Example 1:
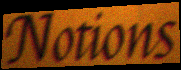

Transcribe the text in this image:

Notions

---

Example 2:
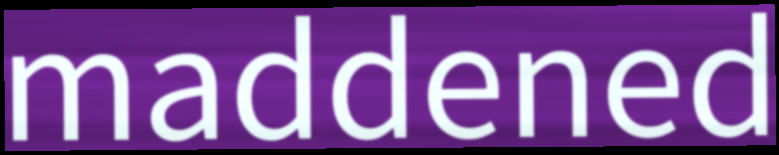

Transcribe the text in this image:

maddened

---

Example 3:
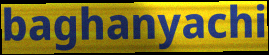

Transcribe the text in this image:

baghanyachi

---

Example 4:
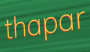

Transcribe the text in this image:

thapar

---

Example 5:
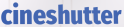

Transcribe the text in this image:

cineshutter